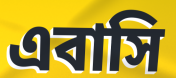
এবাসি